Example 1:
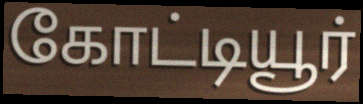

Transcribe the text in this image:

கோட்டியூர்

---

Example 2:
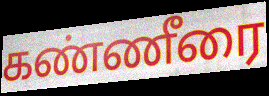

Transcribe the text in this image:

கண்ணீரை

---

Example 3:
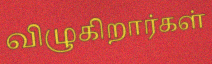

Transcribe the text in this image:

விழுகிறார்கள்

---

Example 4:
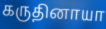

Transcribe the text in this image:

கருதினாயா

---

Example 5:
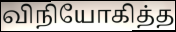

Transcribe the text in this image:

விநியோகித்த